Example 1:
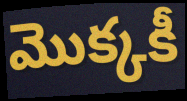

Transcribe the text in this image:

మొక్కకీ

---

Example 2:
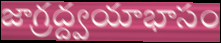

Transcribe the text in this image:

జాగ్రద్ద్వయాభాసం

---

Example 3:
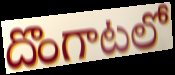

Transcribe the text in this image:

దొంగాటలో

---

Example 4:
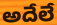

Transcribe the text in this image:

అదేలే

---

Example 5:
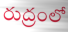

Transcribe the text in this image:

రుద్రంలో